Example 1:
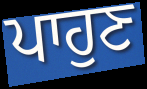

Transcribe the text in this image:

ਪਾਹੁਣ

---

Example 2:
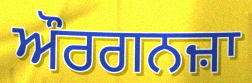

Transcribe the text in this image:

ਔਰਗਨਜ਼ਾ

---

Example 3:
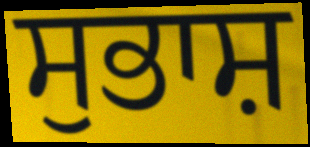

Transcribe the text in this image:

ਸੁਭਾਸ਼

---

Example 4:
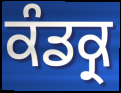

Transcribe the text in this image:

ਕੰਡਕ੍ਰ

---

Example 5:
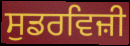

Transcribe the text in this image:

ਸੁਡਰਵਿਜ਼ੀ